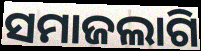
ସମାଜଲାଗି